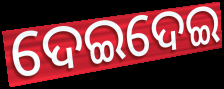
ଦେଇଦେଇ